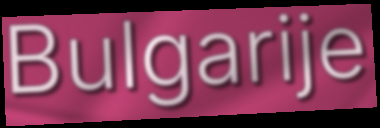
Bulgarije